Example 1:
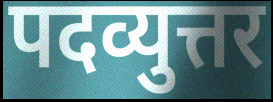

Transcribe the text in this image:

पदव्युत्तर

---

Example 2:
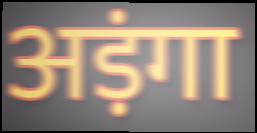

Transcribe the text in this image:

अड़ंगा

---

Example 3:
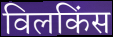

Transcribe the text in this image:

विलकिंस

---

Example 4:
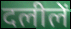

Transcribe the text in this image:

दलीलें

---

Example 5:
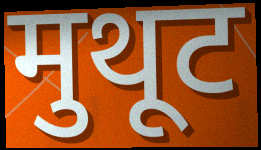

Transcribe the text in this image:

मुथूट